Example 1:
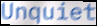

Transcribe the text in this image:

Unquiet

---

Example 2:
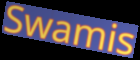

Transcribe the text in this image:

Swamis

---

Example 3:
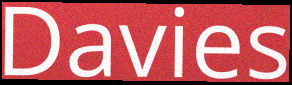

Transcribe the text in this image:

Davies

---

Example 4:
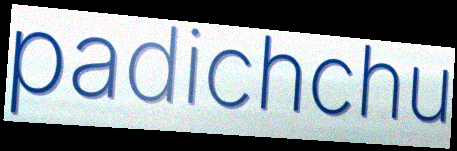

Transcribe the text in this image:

padichchu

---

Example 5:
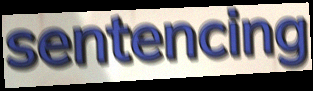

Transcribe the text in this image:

sentencing